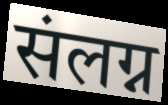
संलग्न